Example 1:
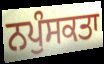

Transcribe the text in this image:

ਨਪੁੰਸਕਤਾ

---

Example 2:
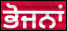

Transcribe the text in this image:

ਭੋਜਨਾਂ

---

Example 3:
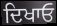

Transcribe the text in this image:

ਦਿਖਾਓ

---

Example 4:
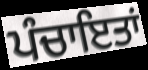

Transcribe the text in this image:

ਪੰਚਾਇਤਾਂ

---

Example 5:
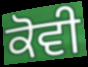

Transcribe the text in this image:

ਕੋਵੀ